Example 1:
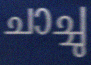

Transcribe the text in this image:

ചാച്ചു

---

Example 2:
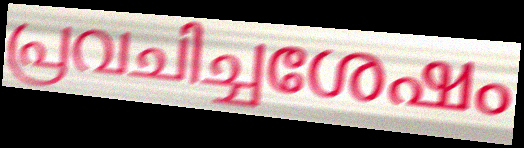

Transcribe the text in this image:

പ്രവചിച്ചശേഷം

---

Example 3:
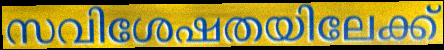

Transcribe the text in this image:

സവിശേഷതയിലേക്ക്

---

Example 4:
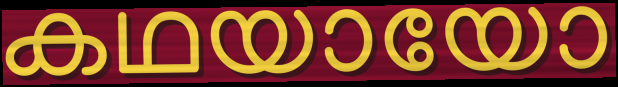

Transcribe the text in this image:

കഥയായോ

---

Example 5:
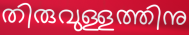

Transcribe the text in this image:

തിരുവുള്ളത്തിനു